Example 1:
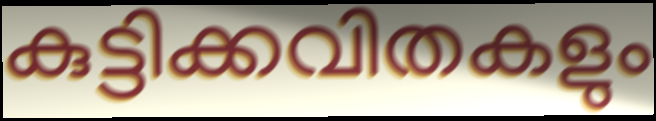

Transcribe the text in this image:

കുട്ടിക്കവിതകളും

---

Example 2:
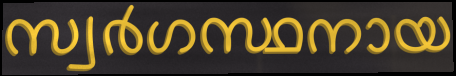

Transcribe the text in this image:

സ്വർഗസ്ഥനായ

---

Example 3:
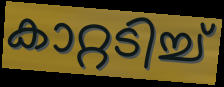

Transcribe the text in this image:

കാറ്റടിച്ച്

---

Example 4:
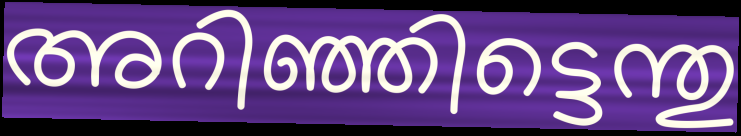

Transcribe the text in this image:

അറിഞ്ഞിട്ടെന്തു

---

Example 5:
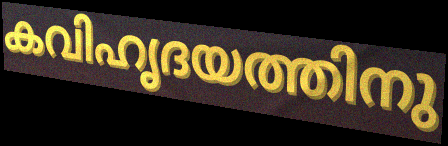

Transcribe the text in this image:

കവിഹൃദയത്തിനു